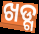
ଖଡ୍ଗ